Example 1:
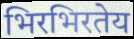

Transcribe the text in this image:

भिरभिरतेय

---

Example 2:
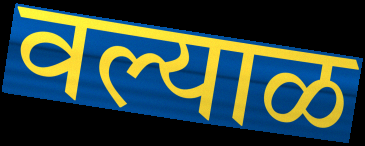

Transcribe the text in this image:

वल्याळ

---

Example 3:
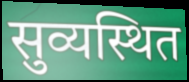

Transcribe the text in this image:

सुव्यस्थित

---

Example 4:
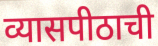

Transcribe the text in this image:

व्यासपीठाची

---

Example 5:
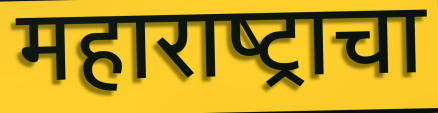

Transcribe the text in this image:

महाराष्ट्राचा